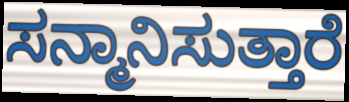
ಸನ್ಮಾನಿಸುತ್ತಾರೆ